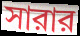
সারার